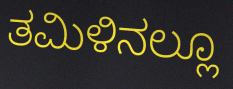
ತಮಿಳಿನಲ್ಲೂ